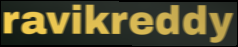
ravikreddy